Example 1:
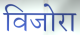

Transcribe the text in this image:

विजोरा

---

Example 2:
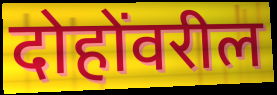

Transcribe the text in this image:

दोहोंवरील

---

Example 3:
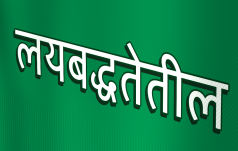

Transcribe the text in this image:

लयबद्धतेतील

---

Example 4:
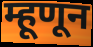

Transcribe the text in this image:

म्हूणून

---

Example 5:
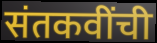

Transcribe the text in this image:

संतकवींची